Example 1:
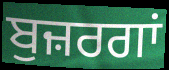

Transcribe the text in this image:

ਬੁਜ਼ਰਗਾਂ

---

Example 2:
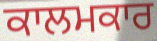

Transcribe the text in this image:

ਕਾਲਮਕਾਰ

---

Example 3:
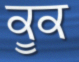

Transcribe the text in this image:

ਕੂਕ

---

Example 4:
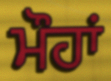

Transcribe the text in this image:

ਮੌਹਾਂ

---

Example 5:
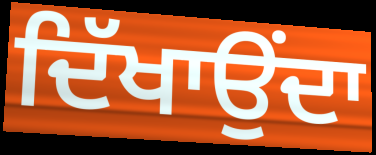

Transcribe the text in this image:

ਦਿੱਖਾਉਂਦਾ